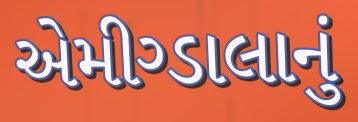
એમીગ્ડાલાનું